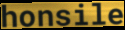
honsile